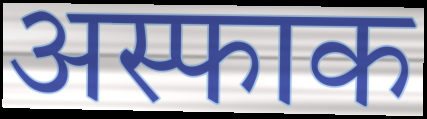
अस्फाक